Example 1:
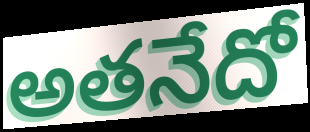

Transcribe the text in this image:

అతనేదో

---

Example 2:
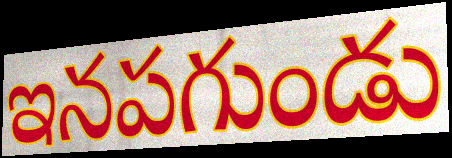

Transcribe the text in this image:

ఇనపగుండు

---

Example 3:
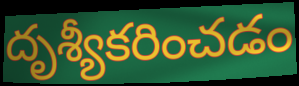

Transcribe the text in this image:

దృశ్యీకరించడం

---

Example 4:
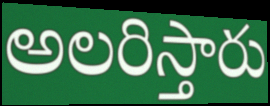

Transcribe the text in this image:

అలరిస్తారు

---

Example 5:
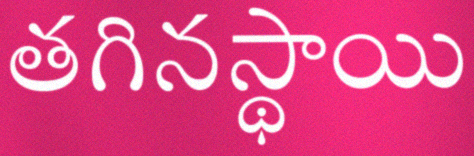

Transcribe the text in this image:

తగినస్థాయి